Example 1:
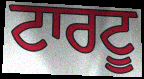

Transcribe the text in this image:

ਟਾਰਟੂ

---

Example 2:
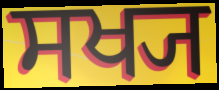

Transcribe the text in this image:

ਸਖ੍ਯ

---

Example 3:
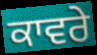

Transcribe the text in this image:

ਕਾਵਰੇ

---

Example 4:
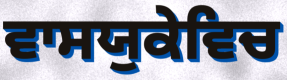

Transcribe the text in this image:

ਵਾਸਯੁਕੇਵਿਚ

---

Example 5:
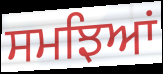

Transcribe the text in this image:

ਸਮਝਿਆਂ